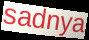
sadnya